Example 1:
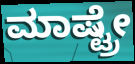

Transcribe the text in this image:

ಮಾಷ್ಟ್ರೇ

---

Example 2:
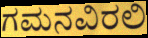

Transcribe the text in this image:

ಗಮನವಿರಲಿ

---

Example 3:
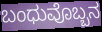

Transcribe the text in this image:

ಬಂಧುವೊಬ್ಬನ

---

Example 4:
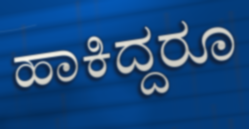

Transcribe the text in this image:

ಹಾಕಿದ್ದರೂ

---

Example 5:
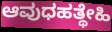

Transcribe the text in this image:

ಆವುಧಹತ್ಥೇಹಿ